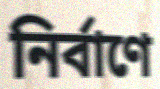
নির্বাণে